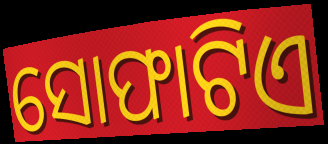
ସୋଫାଟିଏ